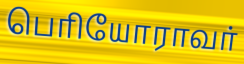
பெரியோராவர்